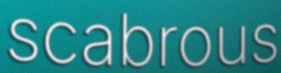
scabrous